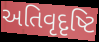
અતિવૃદૃષ્ટિ